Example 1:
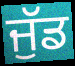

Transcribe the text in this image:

ਜੁੱਡ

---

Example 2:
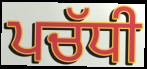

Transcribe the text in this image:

ਪਚੱਧੀ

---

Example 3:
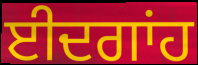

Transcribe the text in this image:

ਈਦਗਾਂਹ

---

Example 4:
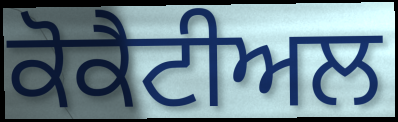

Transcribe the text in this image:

ਕੋਕੈਟੀਅਲ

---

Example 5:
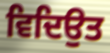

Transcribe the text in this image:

ਵਿਦਿਉਤ